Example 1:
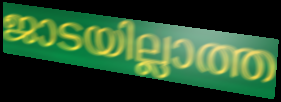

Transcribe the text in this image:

ജാടയില്ലാത്ത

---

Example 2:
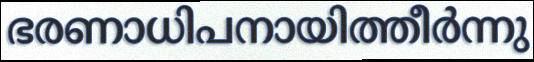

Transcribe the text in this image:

ഭരണാധിപനായിത്തീർന്നു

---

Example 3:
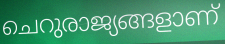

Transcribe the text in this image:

ചെറുരാജ്യങ്ങളാണ്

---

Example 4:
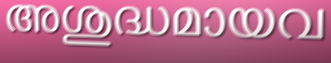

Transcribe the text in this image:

അശുദ്ധമായവ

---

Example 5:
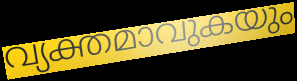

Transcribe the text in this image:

വ്യക്തമാവുകയും